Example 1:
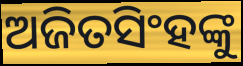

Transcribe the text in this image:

ଅଜିତସିଂହଙ୍କୁ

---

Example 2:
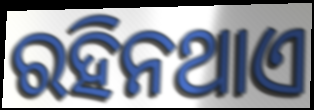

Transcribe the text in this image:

ରହିନଥାଏ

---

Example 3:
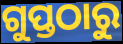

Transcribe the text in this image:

ଗୁପ୍ତଠାରୁ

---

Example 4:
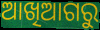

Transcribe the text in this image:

ଆଖିଆଗରୁ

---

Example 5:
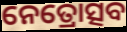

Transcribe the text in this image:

ନେତ୍ରୋତ୍ସବ